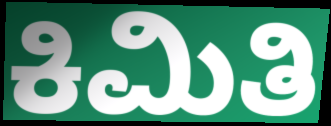
ಕಿಮಿತಿ